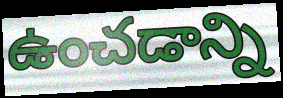
ఉంచడాన్ని